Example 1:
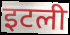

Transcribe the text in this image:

इटली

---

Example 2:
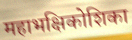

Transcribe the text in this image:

महाभक्षिकोशिका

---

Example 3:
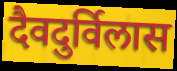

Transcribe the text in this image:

दैवदुर्विलास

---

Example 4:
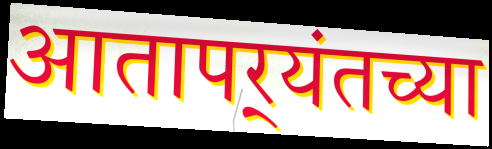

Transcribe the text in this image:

आतापर्यंतच्या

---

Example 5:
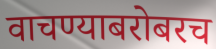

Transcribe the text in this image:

वाचण्याबरोबरच